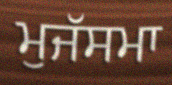
ਮੁਜੱਸਮਾ